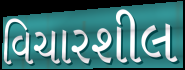
વિચારશીલ